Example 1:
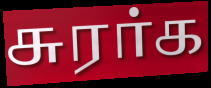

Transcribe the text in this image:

சுரர்க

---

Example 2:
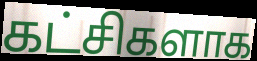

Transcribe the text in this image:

கட்சிகளாக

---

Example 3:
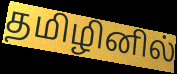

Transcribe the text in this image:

தமிழினில்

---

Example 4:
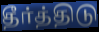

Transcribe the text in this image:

தீர்த்திடு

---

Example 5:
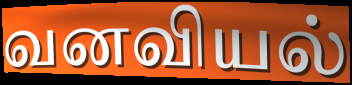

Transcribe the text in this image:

வனவியல்